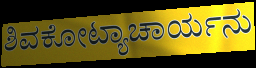
ಶಿವಕೋಟ್ಯಾಚಾರ್ಯನು